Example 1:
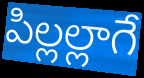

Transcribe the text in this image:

పిల్లల్లాగే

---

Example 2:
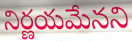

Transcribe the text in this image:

నిర్ణయమేనని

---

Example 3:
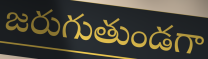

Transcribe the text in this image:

జరుగుతుండగా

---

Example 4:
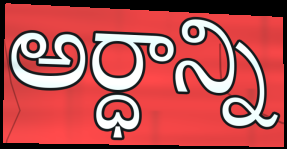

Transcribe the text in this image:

అర్ధాన్ని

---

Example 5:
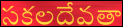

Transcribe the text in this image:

సకలదేవతా